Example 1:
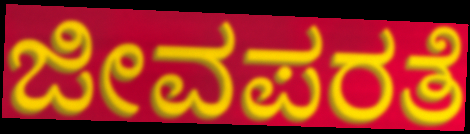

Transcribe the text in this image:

ಜೀವಪರತೆ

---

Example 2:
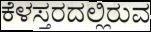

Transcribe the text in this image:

ಕೆಳಸ್ತರದಲ್ಲಿರುವ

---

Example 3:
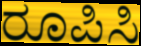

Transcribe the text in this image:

ರೂಪಿಸಿ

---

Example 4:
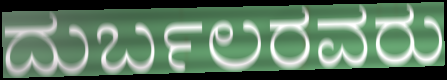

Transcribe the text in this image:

ದುರ್ಬಲರವರು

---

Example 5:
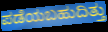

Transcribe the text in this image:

ಪಡೆಯಬಹುದಿತ್ತು